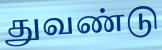
துவண்டு